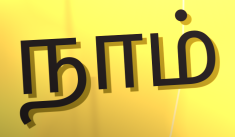
நாம்